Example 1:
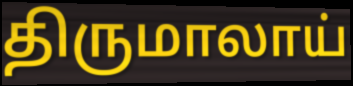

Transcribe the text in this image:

திருமாலாய்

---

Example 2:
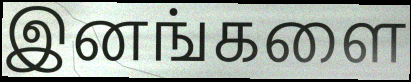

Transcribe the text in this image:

இனங்களை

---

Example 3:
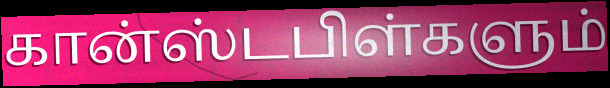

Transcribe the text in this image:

கான்ஸ்டபிள்களும்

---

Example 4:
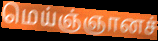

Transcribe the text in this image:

மெய்ஞ்ஞானச்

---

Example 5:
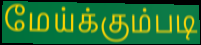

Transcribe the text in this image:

மேய்க்கும்படி